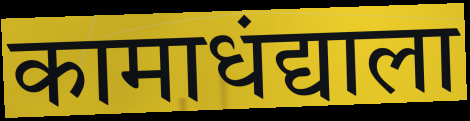
कामाधंद्याला